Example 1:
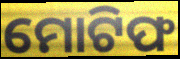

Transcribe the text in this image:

ମୋଟିଫ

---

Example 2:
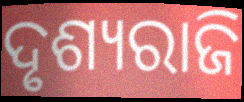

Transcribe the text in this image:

ଦୃଶ୍ୟରାଜି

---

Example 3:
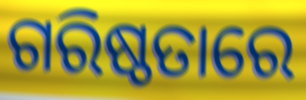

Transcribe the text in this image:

ଗରିଷ୍ଠତାରେ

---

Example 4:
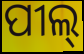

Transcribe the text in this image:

ପୀଲ୍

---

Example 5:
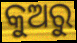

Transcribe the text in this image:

କୁଅରୁ